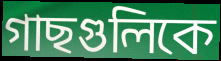
গাছগুলিকে